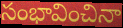
సంభావించినా